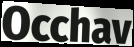
Occhav